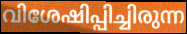
വിശേഷിപ്പിച്ചിരുന്ന